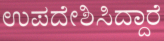
ಉಪದೇಶಿಸಿದ್ದಾರೆ